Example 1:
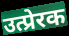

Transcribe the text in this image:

उत्प्रेरक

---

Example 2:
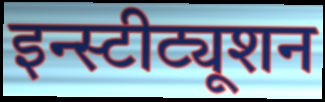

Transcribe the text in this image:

इन्स्टीट्यूशन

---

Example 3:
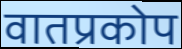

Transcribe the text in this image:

वातप्रकोप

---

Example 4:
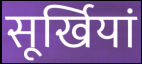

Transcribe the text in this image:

सूर्खियां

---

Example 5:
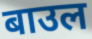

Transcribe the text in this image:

बाउल